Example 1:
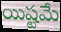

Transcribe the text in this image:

యిష్టమే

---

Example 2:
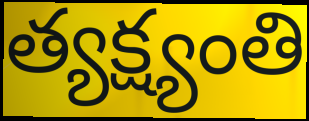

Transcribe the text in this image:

త్యక్ష్యంతి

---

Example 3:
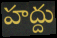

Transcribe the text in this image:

హద్దు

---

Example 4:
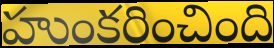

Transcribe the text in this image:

హుంకరించింది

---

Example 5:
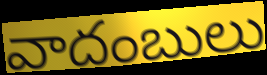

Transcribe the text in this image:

వాదంబులు